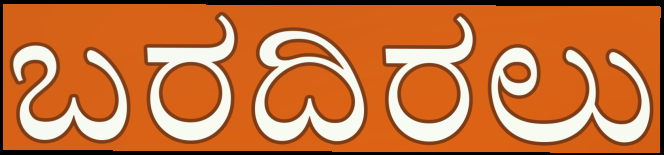
ಬರದಿರಲು